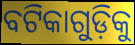
ବଟିକାଗୁଡ଼ିକୁ